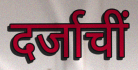
दर्जाचीं